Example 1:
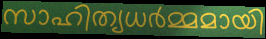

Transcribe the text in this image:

സാഹിത്യധർമ്മമായി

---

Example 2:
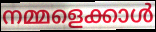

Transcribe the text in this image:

നമ്മളെക്കാൾ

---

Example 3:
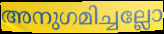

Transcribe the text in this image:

അനുഗമിച്ചല്ലോ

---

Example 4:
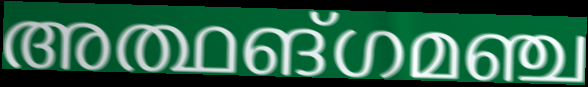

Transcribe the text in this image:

അത്ഥങ്ഗമഞ്ച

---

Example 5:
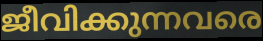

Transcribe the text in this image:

ജീവിക്കുന്നവരെ